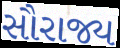
સૌરાજ્ય